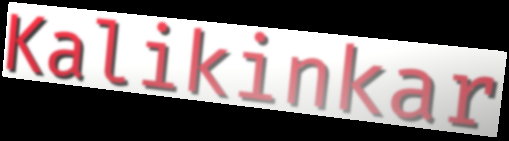
Kalikinkar